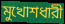
মুখোশধারী